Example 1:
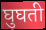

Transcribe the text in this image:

घुघती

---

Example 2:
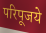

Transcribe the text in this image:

परिपूजये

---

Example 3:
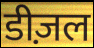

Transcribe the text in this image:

डीज़ल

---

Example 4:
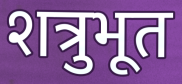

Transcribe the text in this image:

शत्रुभूत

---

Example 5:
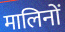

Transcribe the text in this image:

मालिनों